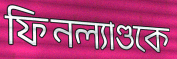
ফিনল্যাণ্ডকে